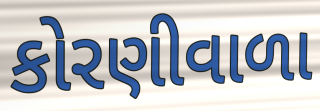
કોરણીવાળા